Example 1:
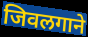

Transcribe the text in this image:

जिवलगाने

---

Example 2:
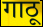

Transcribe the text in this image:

गाठू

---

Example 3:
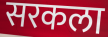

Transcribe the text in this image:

सरकला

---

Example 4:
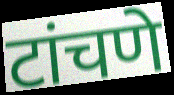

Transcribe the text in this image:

टांचणे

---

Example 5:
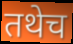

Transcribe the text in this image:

तथेच